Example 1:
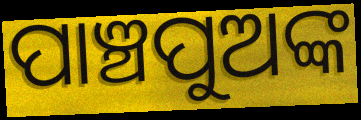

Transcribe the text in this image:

ପାଞ୍ଚପୁଅଙ୍କ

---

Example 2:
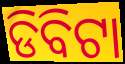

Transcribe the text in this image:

ଡିବିଟା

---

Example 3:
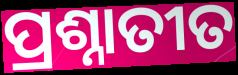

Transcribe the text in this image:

ପ୍ରଶ୍ନାତୀତ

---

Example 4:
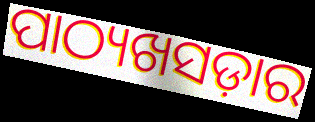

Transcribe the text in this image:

ପାଠ୍ୟଖସଡ଼ାର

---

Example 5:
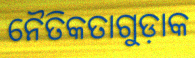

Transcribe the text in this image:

ନୈତିକତାଗୁଡ଼ାକ